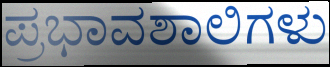
ಪ್ರಭಾವಶಾಲಿಗಳು